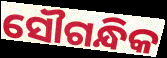
ସୌଗନ୍ଧିକ